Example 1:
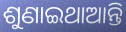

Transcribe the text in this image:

ଶୁଣାଇଥାଆନ୍ତି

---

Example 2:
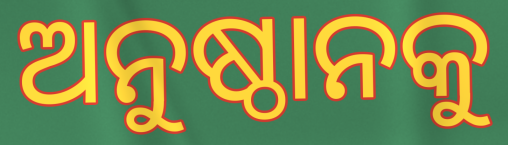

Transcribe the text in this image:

ଅନୁଷ୍ଠାନକୁ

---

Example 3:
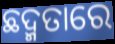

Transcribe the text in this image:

ଛଦ୍ମତାରେ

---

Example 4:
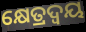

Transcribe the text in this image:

କ୍ଷେତ୍ରଦ୍ଵୟ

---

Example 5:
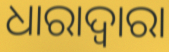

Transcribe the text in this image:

ଧାରାଦ୍ୱାରା